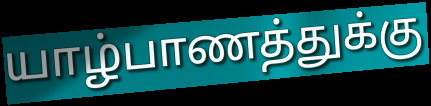
யாழ்பாணத்துக்கு